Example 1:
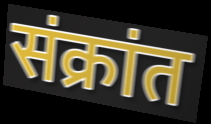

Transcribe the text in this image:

संक्रांत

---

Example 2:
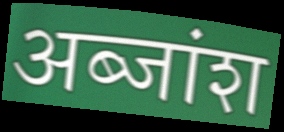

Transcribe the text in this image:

अब्जांश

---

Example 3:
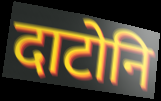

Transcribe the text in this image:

दाटोनि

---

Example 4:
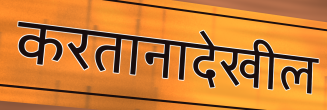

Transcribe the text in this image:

करतानादेखील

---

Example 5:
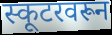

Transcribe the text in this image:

स्कूटरवरून